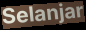
Selanjar